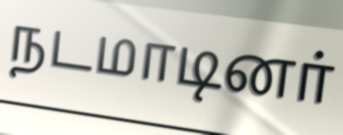
நடமாடினர்